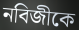
নবিজীকে